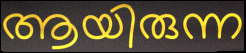
ആയിരുന്ന